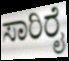
ಸಾರಿರೈ